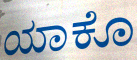
ಯಾಕೊ